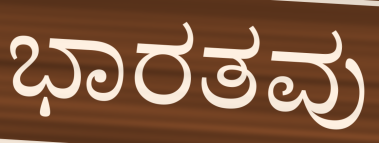
ಭಾರತವು